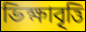
ভিক্ষাবৃত্তি